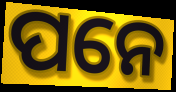
ପନେ